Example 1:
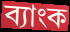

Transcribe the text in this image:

ব্যাংক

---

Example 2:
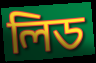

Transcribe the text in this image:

লিড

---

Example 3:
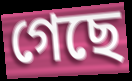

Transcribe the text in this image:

গেছে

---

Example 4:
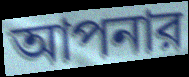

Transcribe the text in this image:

আপনার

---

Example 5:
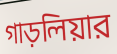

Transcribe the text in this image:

গাড়লিয়ার